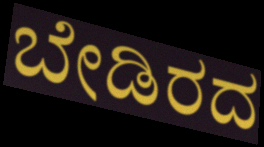
ಬೇಡಿರದ